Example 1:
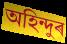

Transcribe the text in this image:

অহিন্দুৰ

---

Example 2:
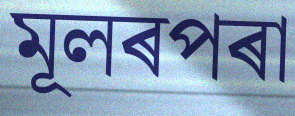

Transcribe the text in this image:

মূলৰপৰা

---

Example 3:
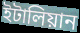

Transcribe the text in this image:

ইটালিয়ান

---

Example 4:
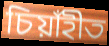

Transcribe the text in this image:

চিয়াঁহীত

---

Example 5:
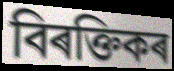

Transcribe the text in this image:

বিৰক্তিকৰ